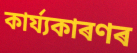
কাৰ্য্যকাৰণৰ